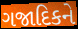
ગજાદિકને